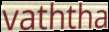
vaththa